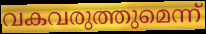
വകവരുത്തുമെന്ന്